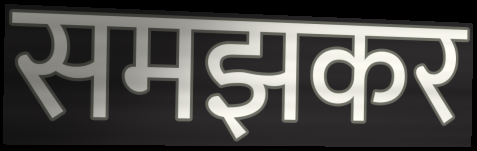
समझकर